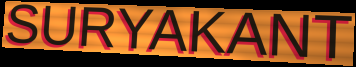
SURYAKANT